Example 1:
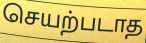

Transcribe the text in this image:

செயற்படாத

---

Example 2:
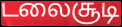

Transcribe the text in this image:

டலைசூடி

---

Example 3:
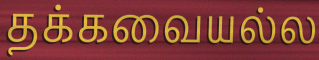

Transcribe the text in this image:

தக்கவையல்ல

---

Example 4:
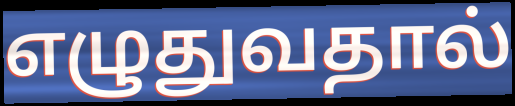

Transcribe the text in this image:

எழுதுவதால்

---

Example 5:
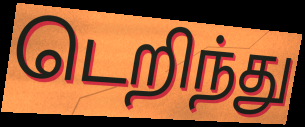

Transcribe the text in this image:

டெறிந்து